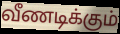
வீணடிக்கும்